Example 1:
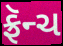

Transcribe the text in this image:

ફ્રૅન્ચ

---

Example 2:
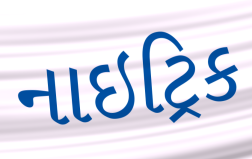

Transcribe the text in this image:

નાઇટ્રિક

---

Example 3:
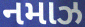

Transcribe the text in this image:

નમાઝ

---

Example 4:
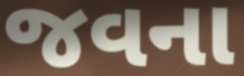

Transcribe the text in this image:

જવના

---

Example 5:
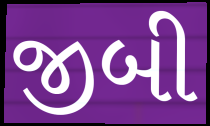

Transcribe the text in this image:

જીબી